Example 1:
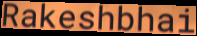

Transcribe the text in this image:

Rakeshbhai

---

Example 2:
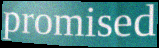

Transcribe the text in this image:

promised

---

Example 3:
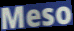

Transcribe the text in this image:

Meso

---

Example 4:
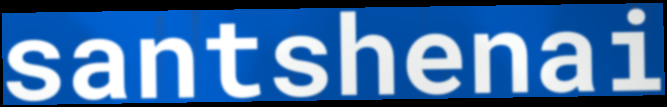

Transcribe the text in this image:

santshenai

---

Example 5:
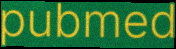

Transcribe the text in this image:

pubmed